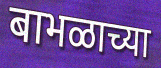
बाभळाच्या